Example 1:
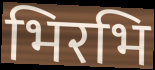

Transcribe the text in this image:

भिरभि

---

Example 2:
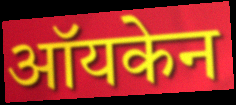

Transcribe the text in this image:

ऑयकेन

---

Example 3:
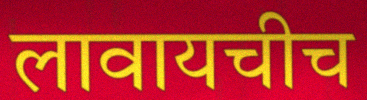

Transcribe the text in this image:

लावायचीच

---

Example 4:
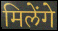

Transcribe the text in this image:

मिलेंगे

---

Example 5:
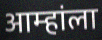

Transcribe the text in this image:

आम्हांला